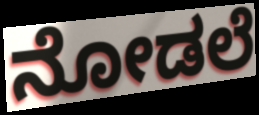
ನೋಡಲೆ